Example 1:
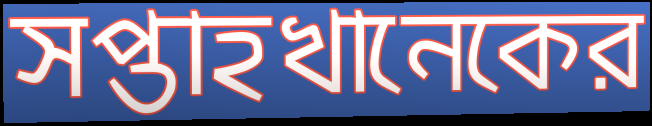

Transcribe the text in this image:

সপ্তাহখানেকের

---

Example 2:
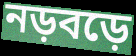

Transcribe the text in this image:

নড়বড়ে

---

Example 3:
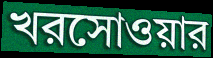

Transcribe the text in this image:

খরসোওয়ার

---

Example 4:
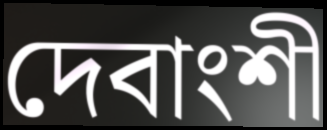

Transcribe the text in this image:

দেবাংশী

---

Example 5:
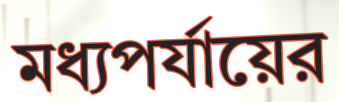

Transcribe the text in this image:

মধ্যপর্যায়ের